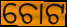
ଚୋଟ